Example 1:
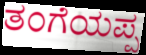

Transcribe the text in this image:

ತಂಗೆಯಪ್ಪ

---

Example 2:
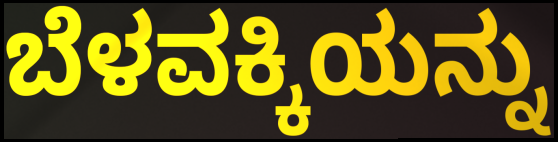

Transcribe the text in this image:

ಬೆಳವಕ್ಕಿಯನ್ನು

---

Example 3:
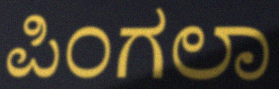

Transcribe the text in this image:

ಪಿಂಗಲಾ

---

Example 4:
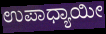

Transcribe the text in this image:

ಉಪಾಧ್ಯಾಯೀ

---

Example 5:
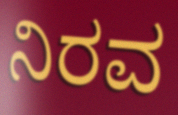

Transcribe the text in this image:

ನಿರವ